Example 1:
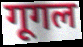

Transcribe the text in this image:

गूगल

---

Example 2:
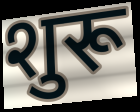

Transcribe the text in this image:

शुरू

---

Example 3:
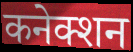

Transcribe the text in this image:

कनेक्शन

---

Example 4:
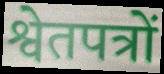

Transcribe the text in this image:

श्वेतपत्रों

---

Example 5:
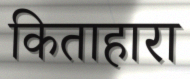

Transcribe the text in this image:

किताहारा